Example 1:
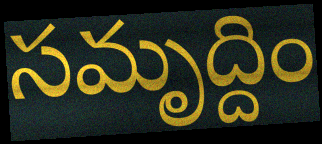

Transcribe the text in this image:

సమృద్దిం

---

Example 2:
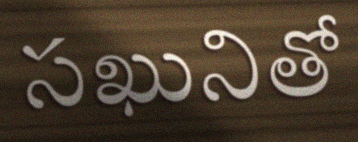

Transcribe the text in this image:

సఖునితో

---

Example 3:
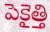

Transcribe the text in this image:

పెకైత్తి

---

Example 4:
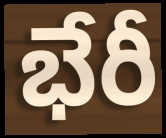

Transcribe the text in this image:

భేరీ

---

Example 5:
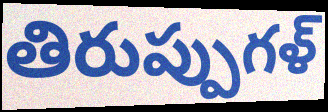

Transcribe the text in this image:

తిరుప్పుగళ్